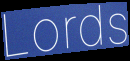
Lords